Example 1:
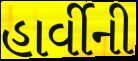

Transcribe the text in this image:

હાર્વીની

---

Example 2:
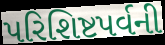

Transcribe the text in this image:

પરિશિષ્ટપર્વની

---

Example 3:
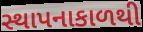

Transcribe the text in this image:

સ્થાપનાકાળથી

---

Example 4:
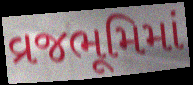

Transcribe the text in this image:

વ્રજભૂમિમાં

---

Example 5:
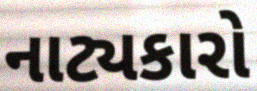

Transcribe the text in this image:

નાટ્યકારો